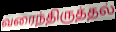
வரைந்திருத்தல்